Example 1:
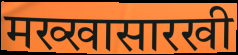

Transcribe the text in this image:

मख्खासारखी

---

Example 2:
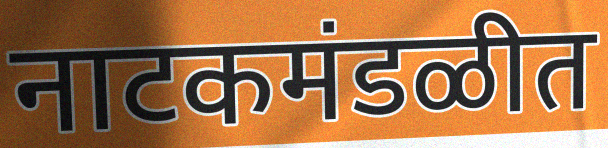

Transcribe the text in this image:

नाटकमंडळीत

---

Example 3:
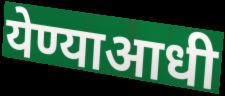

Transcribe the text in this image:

येण्याआधी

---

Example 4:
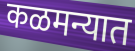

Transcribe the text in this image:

कळमन्यात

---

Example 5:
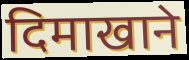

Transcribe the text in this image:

दिमाखाने